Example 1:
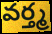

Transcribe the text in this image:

వర్త్మ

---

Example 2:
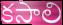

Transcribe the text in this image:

కసాలి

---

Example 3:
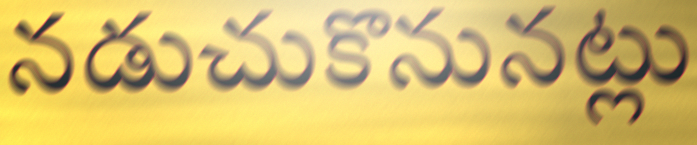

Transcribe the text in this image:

నడుచుకొనునట్లు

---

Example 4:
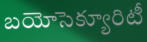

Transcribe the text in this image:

బయోసెక్యూరిటీ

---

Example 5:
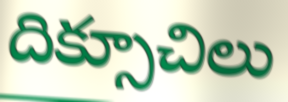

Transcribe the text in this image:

దిక్సూచిలు